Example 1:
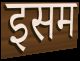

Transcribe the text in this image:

इसम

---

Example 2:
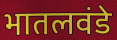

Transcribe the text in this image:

भातलवंडे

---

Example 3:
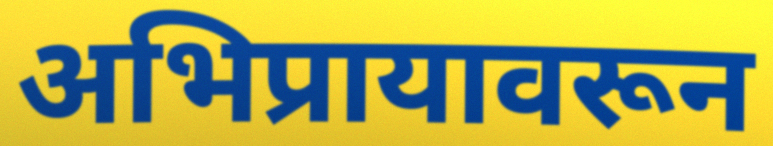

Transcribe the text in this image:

अभिप्रायावरून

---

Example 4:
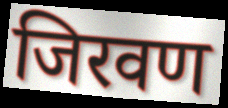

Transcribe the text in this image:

जिरवण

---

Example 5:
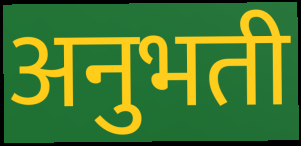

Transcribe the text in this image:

अनुभती